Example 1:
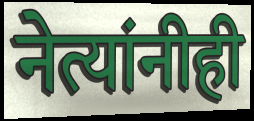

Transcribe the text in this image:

नेत्यांनीही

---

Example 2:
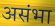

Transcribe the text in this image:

असंभा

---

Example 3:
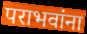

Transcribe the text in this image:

पराभवांना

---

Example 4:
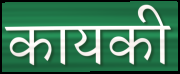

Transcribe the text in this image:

कायकी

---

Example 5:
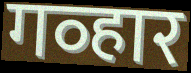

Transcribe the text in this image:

गव्हार